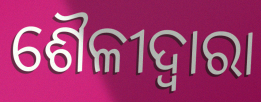
ଶୈଳୀଦ୍ୱାରା